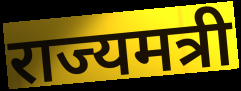
राज्यमत्री